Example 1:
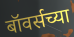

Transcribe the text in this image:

बॉवर्सच्या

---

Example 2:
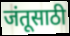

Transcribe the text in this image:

जंतूसाठी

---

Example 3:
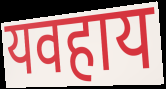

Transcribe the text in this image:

यवहाय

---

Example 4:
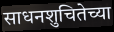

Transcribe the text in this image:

साधनशुचितेच्या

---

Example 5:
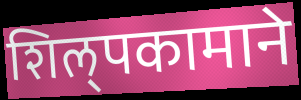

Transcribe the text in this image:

शिल्पकामाने